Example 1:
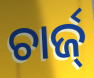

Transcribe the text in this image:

ଚାର୍ଜ୍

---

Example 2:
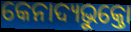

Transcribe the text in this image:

କେନାଦ୍ୟଭୁକ୍ତୋ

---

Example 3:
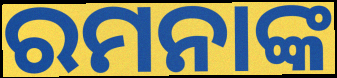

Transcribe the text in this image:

ରମନାଙ୍କ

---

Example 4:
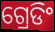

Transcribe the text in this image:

ଗ୍ରେଡିଂ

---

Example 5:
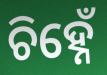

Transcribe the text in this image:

ଚିହ୍ନେଁ